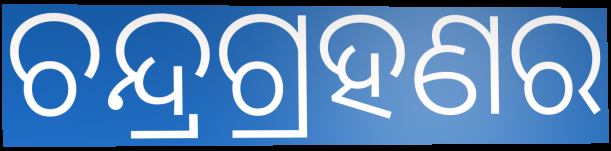
ଚନ୍ଦ୍ରଗ୍ରହଣର